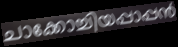
ചാക്കോച്ചിയപ്പാപ്പൻ